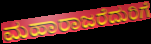
ಮಹಾರಾಜರೆದುರಿಗೆ